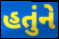
હતુંને